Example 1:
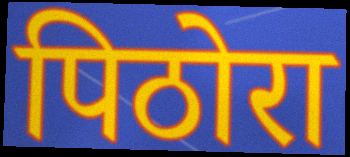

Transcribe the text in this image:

पिठोरा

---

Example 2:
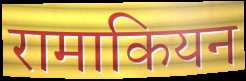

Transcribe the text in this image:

रामाकियन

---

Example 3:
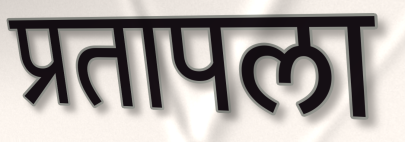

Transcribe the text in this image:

प्रतापला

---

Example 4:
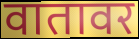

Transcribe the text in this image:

वातावर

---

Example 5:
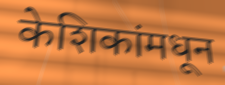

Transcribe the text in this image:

केशिकांमधून